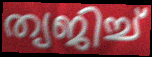
ത്യജിച്ച്